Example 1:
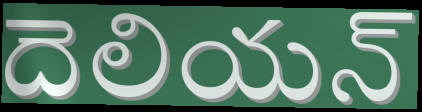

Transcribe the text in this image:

దెలియన్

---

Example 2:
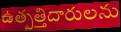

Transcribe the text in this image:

ఉత్పత్తిదారులను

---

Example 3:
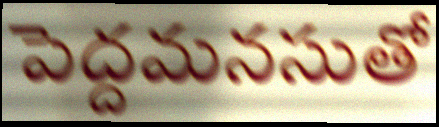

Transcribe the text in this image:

పెద్దమనసుతో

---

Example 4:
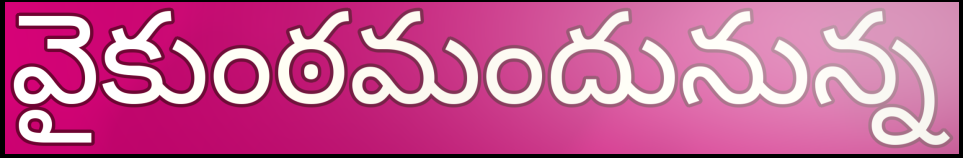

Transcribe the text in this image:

వైకుంఠమందునున్న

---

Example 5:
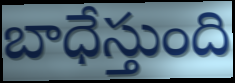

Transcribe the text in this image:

బాధేస్తుంది